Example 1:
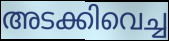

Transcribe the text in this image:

അടക്കിവെച്ച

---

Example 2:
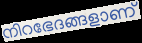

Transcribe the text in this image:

നിറഭേദങ്ങളാണ്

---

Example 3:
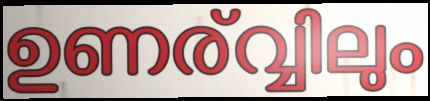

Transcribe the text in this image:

ഉണര്വ്വിലും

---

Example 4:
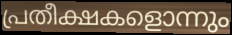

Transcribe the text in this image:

പ്രതീക്ഷകളൊന്നും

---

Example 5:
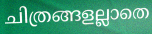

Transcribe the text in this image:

ചിത്രങ്ങളല്ലാതെ